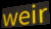
weir